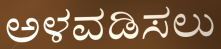
ಅಳವಡಿಸಲು